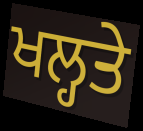
ਖਲ੍ਹਤੇ